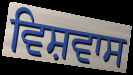
ਵਿਸ਼ਵਾਸ